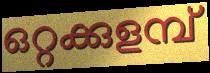
ഒറ്റക്കുളമ്പ്